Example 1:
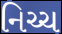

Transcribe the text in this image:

નિચ્ચ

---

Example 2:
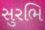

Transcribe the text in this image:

સુરભિ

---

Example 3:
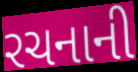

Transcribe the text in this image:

રચનાની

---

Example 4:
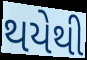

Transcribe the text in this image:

થયેથી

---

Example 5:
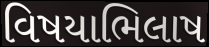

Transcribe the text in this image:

વિષયાભિલાષ